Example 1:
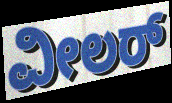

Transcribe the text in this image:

ವೀಲರ್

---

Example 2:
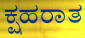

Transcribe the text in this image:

ಕ್ಷಹರಾತ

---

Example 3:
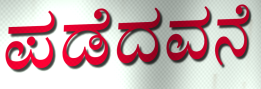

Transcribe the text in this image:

ಪಡೆದವನೆ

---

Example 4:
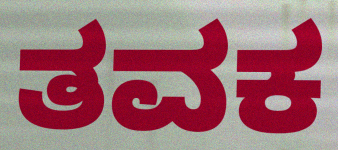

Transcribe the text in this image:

ತವಕ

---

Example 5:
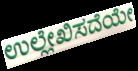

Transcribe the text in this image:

ಉಲ್ಲೇಖಿಸದೆಯೇ